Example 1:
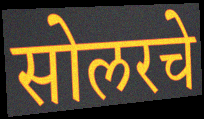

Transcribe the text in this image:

सोलरचे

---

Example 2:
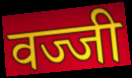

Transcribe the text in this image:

वज्जी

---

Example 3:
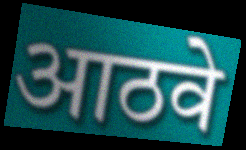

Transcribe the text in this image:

आठवे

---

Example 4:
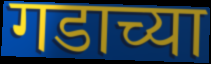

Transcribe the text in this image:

गडाच्या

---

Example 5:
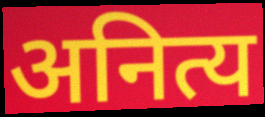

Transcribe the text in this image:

अनित्य